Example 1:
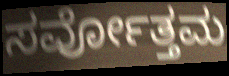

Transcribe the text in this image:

ಸರ್ವೋತ್ತಮ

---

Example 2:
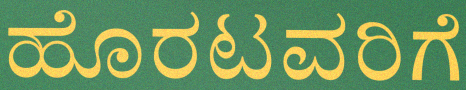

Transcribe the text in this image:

ಹೊರಟವರಿಗೆ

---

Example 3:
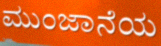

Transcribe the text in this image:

ಮುಂಜಾನೆಯ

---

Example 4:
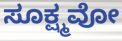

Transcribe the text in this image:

ಸೂಕ್ಷ್ಮವೋ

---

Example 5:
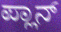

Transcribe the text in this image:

ಪ್ಲಾನ್